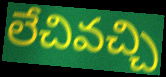
లేచివచ్చి